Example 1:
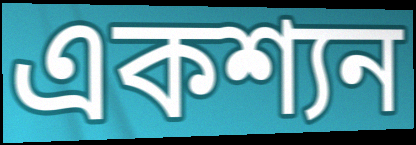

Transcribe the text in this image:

একশ্যন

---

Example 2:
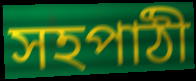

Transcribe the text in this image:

সহপাঠী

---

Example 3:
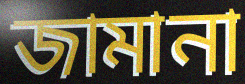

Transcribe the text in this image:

জামানা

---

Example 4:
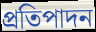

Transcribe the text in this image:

প্ৰতিপাদন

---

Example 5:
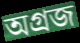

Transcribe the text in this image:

অগ্ৰজ